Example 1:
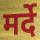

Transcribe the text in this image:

मर्दे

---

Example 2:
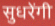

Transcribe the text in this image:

सुधरेंगी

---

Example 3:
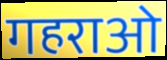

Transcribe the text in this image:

गहराओ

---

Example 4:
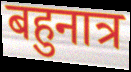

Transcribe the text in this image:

बहुनात्र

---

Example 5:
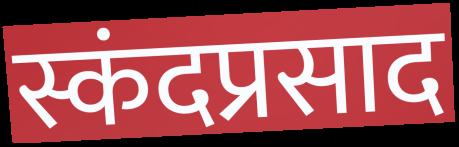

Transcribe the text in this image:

स्कंदप्रसाद